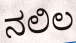
ನಲಿಲ